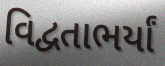
વિદ્વતાભર્યાં